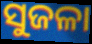
ସୁଜଳା